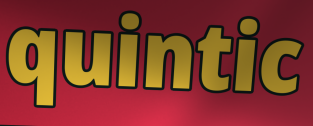
quintic